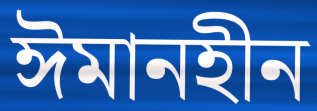
ঈমানহীন